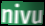
nivu